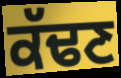
ਕੱਢਣ